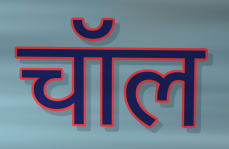
चॉल